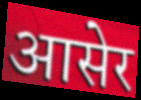
आसेर